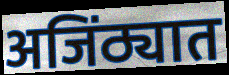
अजिंठ्यात